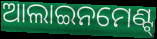
ଆଲାଇନମେଣ୍ଟ୍